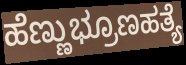
ಹೆಣ್ಣುಭ್ರೂಣಹತ್ಯೆ